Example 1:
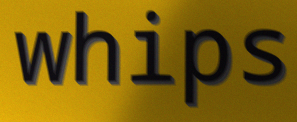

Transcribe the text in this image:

whips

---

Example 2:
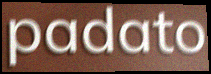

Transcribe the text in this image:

padato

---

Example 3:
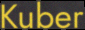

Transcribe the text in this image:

Kuber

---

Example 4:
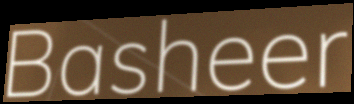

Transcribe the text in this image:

Basheer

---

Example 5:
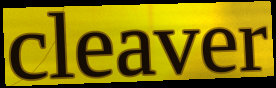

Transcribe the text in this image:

cleaver